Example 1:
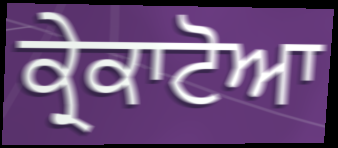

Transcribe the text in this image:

ਕ੍ਰੇਕਾਟੋਆ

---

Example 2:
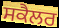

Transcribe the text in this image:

ਸਕੈਲਰ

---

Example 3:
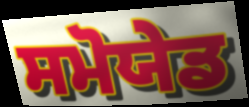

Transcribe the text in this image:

ਸਮੋਯੇਡ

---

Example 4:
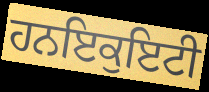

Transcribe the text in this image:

ਹਨਇਕੁਇਟੀ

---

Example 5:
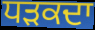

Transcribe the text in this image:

ਧੜਕਦਾ